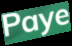
Paye